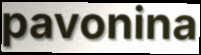
pavonina